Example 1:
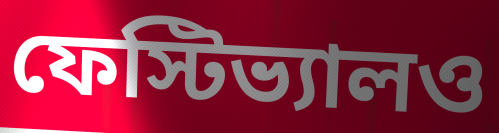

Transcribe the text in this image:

ফেস্টিভ্যালও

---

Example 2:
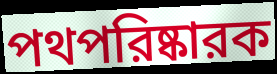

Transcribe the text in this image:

পথপরিষ্কারক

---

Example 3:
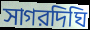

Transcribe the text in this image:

সাগরদিঘি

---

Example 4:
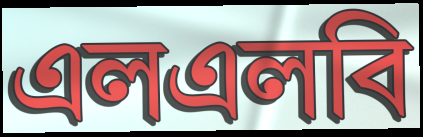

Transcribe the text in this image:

এলএলবি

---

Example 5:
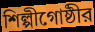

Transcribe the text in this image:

শিল্পীগোষ্ঠীর